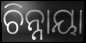
ଚିନ୍ନାୟା